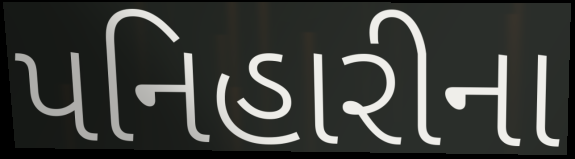
પનિહારીના